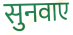
सुनवाए